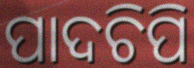
ପାଦଚିପି